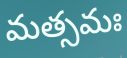
మత్సమః